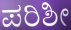
ಪರಿಶೀ